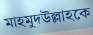
মাহমুদউল্লাহকে